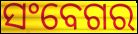
ସଂବେଗର